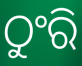
ଠୁଂରି